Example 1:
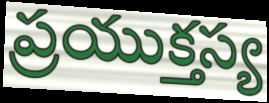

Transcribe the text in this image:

ప్రయుక్తస్య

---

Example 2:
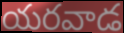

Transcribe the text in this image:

యరవాడ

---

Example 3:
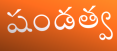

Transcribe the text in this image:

షండత్వ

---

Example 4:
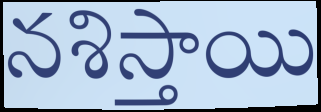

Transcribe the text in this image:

నశిస్తాయి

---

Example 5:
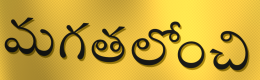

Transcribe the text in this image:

మగతలోంచి